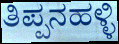
ತಿಪ್ಪನಹಳ್ಳಿ